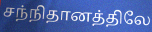
சந்நிதானத்திலே